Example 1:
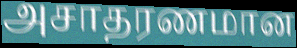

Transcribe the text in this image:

அசாதரணமான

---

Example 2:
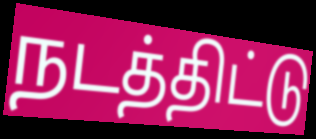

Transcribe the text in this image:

நடத்திட்டு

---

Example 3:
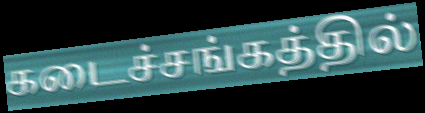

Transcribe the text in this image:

கடைச்சங்கத்தில்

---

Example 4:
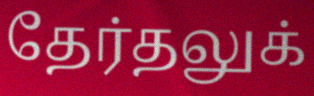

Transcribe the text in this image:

தேர்தலுக்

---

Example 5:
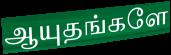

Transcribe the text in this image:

ஆயுதங்களே